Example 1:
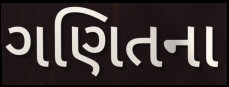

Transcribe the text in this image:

ગણિતના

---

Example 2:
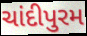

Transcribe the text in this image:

ચાંદીપુરમ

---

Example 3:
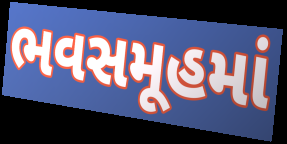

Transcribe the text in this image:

ભવસમૂહમાં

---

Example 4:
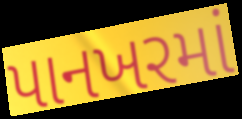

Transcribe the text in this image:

પાનખરમાં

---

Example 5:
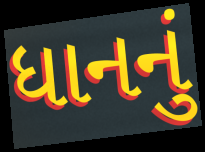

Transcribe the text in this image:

ધાનનું